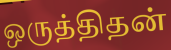
ஒருத்திதன்